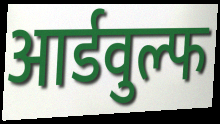
आर्डवुल्फ